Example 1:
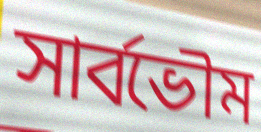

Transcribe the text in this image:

সাৰ্বভৌম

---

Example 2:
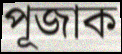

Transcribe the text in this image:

পূজাক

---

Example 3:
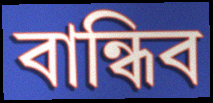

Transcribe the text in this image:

বান্ধিব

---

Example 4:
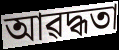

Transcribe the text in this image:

আৱদ্ধতা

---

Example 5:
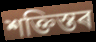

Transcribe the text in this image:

শক্তিস্তৰ